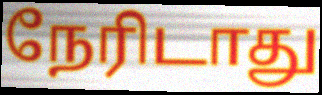
நேரிடாது